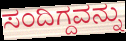
ಸಂದಿಗ್ದವನ್ನು